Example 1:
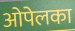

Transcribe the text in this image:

ओपेलका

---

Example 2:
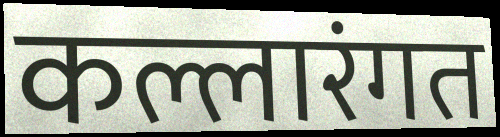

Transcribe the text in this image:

कल्लारंगत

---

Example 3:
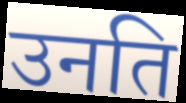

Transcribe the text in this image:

उनति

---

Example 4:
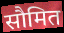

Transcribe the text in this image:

सौमित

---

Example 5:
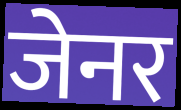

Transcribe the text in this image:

जेनर